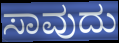
ಸಾವುದು